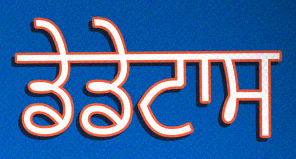
ਡੇਡੇਟਾਸ